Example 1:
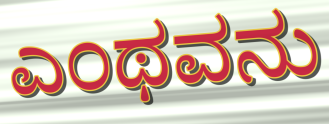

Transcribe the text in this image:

ಎಂಥವನು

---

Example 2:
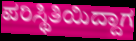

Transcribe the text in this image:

ಪರಿಸ್ಥಿತಿಯಿದ್ದಾಗ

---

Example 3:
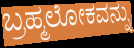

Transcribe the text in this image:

ಬ್ರಹ್ಮಲೋಕವನ್ನು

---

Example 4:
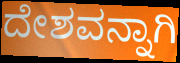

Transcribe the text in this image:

ದೇಶವನ್ನಾಗಿ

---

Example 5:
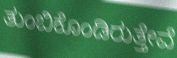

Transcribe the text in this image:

ತುಂಬಿಕೊಂಡಿರುತ್ತೇವೆ